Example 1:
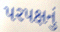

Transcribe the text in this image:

પરપક્ષનું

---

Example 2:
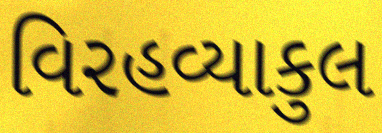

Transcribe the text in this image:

વિરહવ્યાકુલ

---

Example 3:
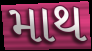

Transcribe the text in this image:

માથ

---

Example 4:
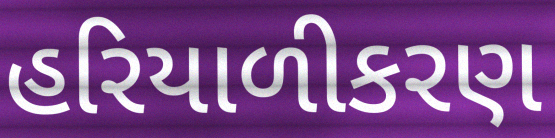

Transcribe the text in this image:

હરિયાળીકરણ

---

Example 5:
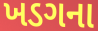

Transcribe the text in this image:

ખડગના